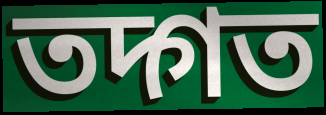
তদ্গত